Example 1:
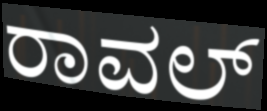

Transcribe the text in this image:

ರಾವಲ್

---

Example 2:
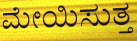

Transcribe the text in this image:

ಮೇಯಿಸುತ್ತ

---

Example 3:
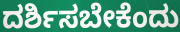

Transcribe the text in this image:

ದರ್ಶಿಸಬೇಕೆಂದು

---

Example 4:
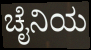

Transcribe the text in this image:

ಚೈನಿಯ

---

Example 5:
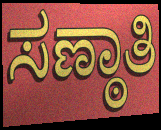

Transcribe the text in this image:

ಸಣ್ಠಾತಿ